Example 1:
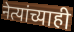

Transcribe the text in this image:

नेत्यांच्याही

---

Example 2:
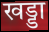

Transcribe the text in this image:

खड्डा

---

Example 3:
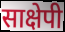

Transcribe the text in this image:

साक्षेपी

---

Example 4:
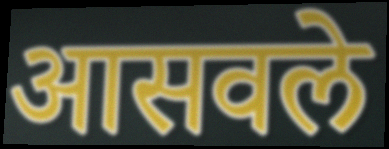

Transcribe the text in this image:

आसवले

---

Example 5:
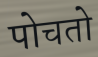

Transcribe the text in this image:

पोचतो